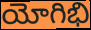
యోగిభి